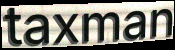
taxman